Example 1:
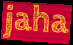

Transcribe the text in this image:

jaha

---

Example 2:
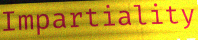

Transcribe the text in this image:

Impartiality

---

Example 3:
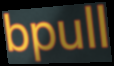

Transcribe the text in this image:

bpull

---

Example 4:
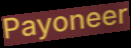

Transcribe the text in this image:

Payoneer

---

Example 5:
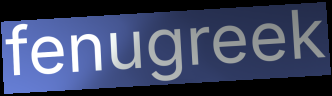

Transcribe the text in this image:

fenugreek